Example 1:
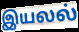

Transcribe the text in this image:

இயலல்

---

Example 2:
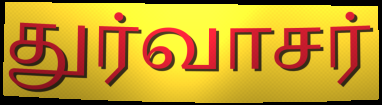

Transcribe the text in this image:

துர்வாசர்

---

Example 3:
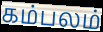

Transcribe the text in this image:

கம்பலம்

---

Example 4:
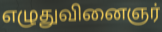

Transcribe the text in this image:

எழுதுவினைஞர்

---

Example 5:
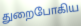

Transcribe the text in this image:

துறைபோகிய